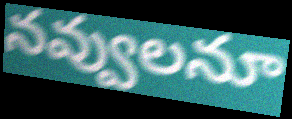
నవ్వులనూ